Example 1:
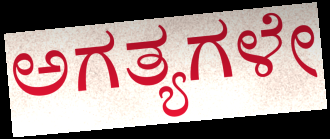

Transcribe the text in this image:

ಅಗತ್ಯಗಳೇ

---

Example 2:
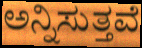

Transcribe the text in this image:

ಅನ್ನಿಸುತ್ತವೆ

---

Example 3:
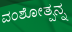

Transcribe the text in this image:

ವಂಶೋತ್ಪನ್ನ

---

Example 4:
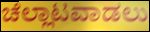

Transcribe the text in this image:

ಚೆಲ್ಲಾಟವಾಡಲು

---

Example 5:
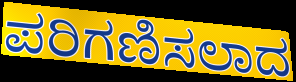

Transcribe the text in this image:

ಪರಿಗಣಿಸಲಾದ